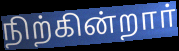
நிற்கின்றார்